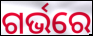
ଗର୍ଭରେ